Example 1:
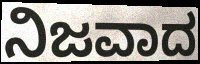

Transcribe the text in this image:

ನಿಜವಾದ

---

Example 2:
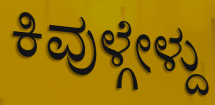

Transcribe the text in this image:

ಕಿವುಳ್ಗೇಳ್ದು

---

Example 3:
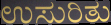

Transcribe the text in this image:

ಉಸುರಿತು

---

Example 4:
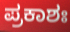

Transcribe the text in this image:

ಪ್ರಕಾಶಃ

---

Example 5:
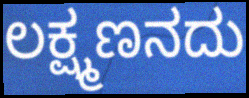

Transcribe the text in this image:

ಲಕ್ಷ್ಮಣನದು